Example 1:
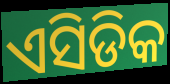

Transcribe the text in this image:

ଏସିଡିକ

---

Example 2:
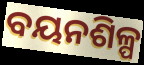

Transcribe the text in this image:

ବୟନଶିଳ୍ପ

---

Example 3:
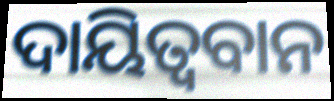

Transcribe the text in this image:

ଦାୟିତ୍ବବାନ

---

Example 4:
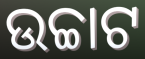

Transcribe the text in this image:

ଉଚ୍ଚାଟ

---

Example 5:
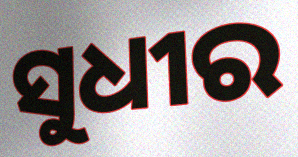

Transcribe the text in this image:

ସୁଧୀର